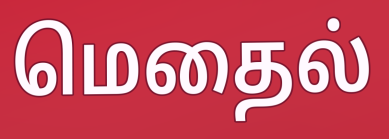
மெதைல்